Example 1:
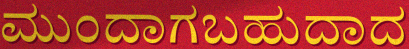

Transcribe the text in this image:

ಮುಂದಾಗಬಹುದಾದ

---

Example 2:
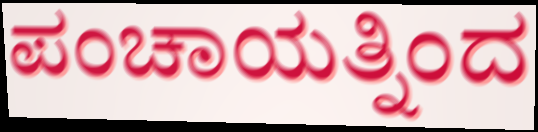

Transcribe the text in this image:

ಪಂಚಾಯತ್ನಿಂದ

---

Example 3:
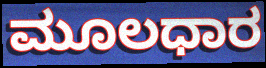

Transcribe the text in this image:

ಮೂಲಧಾರ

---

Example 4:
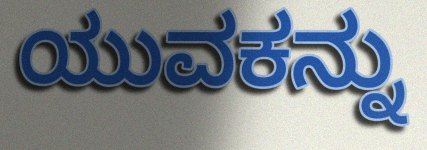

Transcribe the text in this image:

ಯುವಕನ್ನು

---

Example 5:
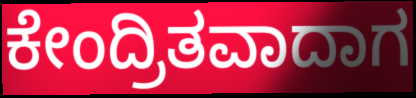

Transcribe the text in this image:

ಕೇಂದ್ರಿತವಾದಾಗ